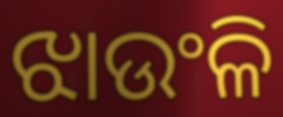
ଝାଉଂଳି